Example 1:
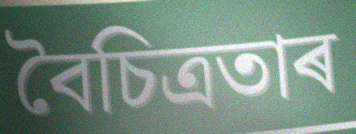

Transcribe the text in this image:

বৈচিত্ৰতাৰ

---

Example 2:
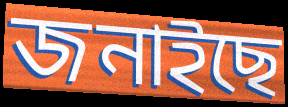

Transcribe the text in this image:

জনাইছে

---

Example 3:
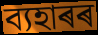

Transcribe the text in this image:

ব্যহাৰৰ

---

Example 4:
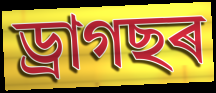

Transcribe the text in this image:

ড্ৰাগছৰ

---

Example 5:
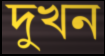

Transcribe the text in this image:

দুখন